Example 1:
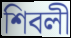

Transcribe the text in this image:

শিবলী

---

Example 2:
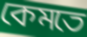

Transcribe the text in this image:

কেমতে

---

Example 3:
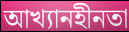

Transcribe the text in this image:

আখ্যানহীনতা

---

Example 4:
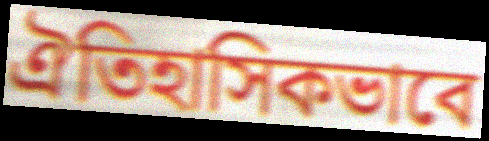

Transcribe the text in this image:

ঐতিহাসিকভাবে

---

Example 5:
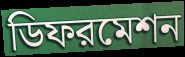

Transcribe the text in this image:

ডিফরমেশন